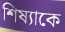
শিষ্যাকে